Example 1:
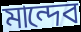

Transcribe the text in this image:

মান্দেব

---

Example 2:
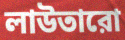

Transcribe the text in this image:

লাউতারো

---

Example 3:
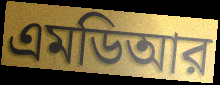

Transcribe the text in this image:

এমডিআর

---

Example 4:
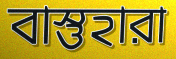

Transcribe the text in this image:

বাস্তুহারা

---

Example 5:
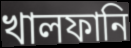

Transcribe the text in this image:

খালফানি